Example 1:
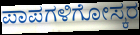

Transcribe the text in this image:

ಪಾಪಗಳಿಗೋಸ್ಕರ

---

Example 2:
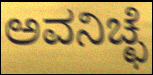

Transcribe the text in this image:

ಅವನಿಚ್ಛೆ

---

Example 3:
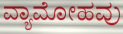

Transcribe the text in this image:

ವ್ಯಾಮೋಹವು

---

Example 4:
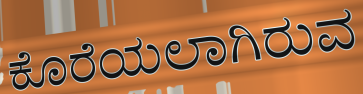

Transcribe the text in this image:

ಕೊರೆಯಲಾಗಿರುವ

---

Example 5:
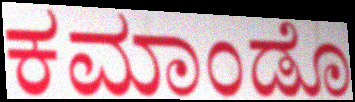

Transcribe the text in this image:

ಕಮಾಂಡೊ